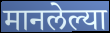
मानलेल्या